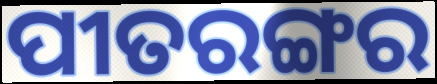
ପୀତରଙ୍ଗର